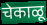
चेकाळू